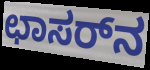
ಛಾಸರ್‌ನ